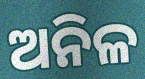
ଅନିଳ